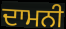
ਦਾਮਨੀ